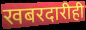
खबरदारीही